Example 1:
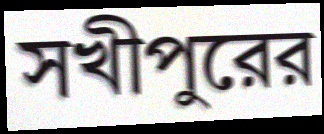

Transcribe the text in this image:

সখীপুরের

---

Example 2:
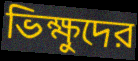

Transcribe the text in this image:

ভিক্ষুদের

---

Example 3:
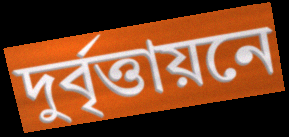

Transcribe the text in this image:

দুর্বৃত্তায়নে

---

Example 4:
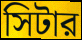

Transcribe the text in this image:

সিটার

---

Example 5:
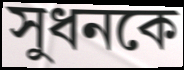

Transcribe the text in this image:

সুধনকে